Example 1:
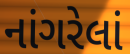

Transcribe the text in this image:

નાંગરેલાં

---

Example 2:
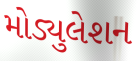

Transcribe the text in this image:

મોડ્યુલેશન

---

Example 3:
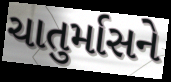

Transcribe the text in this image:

ચાતુર્માસને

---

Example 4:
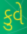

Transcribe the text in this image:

કુવે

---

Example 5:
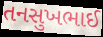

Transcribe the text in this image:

તનસુખભાઈ